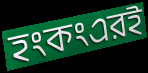
হংকংএরই